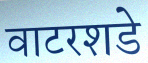
वाटरशडे